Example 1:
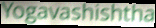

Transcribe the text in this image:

Yogavashishtha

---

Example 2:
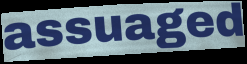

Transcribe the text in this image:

assuaged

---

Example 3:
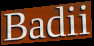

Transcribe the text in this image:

Badii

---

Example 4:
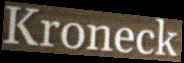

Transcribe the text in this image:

Kroneck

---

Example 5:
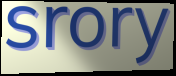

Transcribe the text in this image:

srory